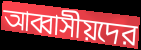
আব্বাসীয়দের